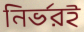
নির্ভরই